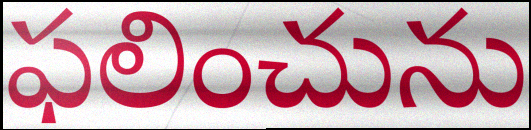
ఫలించును